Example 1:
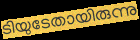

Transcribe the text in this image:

ടിയുടേതായിരുന്നു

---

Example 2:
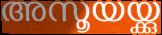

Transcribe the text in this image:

അസൂയയ്ക്കു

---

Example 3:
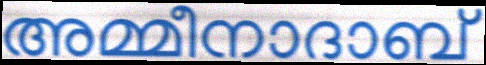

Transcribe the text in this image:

അമ്മീനാദാബ്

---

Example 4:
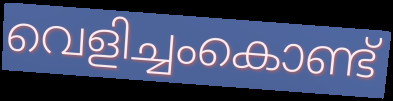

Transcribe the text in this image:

വെളിച്ചംകൊണ്ട്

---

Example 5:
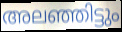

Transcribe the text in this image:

അലഞ്ഞിട്ടും